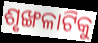
ଶୃଙ୍ଖଳାଟିକୁ